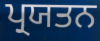
ਪ੍ਰਯਤਨ